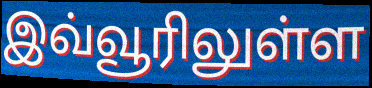
இவ்வூரிலுள்ள